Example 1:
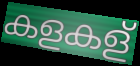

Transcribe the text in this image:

കളകള്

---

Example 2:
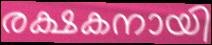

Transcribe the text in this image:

രക്ഷകനായി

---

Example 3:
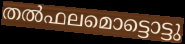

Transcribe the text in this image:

തൽഫലമൊട്ടൊട്ടു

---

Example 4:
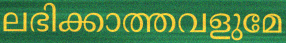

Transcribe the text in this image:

ലഭിക്കാത്തവളുമേ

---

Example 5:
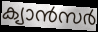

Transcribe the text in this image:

ക്യാൻസർ